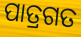
ପାତ୍ରଗତ